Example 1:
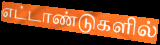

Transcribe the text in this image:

எட்டாண்டுகளில்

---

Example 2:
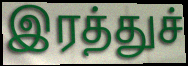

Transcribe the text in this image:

இரத்துச்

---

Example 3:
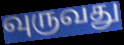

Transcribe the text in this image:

வுருவது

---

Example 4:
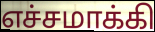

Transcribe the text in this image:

எச்சமாக்கி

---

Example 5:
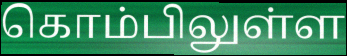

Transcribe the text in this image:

கொம்பிலுள்ள